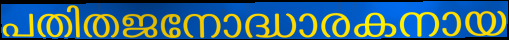
പതിതജനോദ്ധാരകനായ